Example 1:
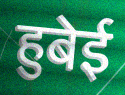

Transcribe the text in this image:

हुबेई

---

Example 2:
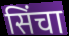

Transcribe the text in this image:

सिंचा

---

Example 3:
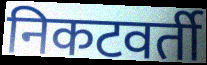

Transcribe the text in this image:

निकटवर्ती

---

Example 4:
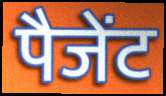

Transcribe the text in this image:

पैजेंट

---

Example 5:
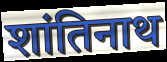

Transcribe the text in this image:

शांतिनाथ